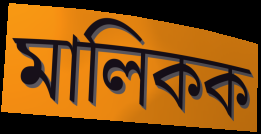
মালিকক